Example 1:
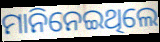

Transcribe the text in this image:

ମାନିନେଇଥିଲେ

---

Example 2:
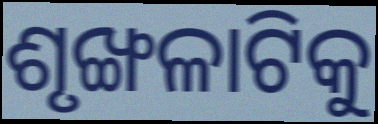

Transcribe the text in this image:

ଶୃଙ୍ଖଳାଟିକୁ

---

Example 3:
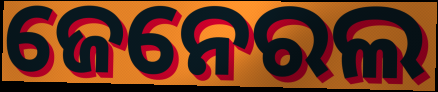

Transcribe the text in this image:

ଜେନେରଲ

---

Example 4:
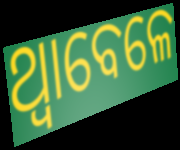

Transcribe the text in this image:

ଥ୍ବାବେଳେ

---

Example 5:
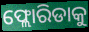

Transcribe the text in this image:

ଫ୍ଲୋରିଡାକୁ